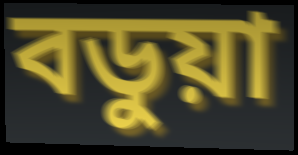
বডুয়া